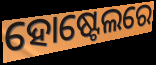
ହୋଷ୍ଟେଲରେ